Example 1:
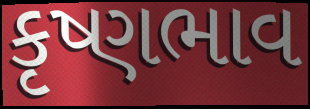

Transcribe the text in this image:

કૃષ્ણભાવ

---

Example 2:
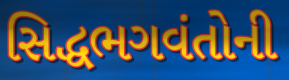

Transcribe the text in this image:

સિદ્ધભગવંતોની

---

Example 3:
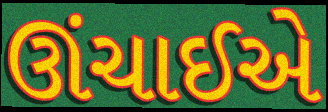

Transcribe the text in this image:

ઊંચાઈએ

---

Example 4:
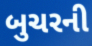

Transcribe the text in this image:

બુચરની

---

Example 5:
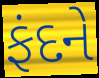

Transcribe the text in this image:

ફંદને